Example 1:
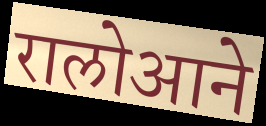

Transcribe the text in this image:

रालोआने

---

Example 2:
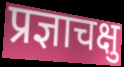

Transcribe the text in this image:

प्रज्ञाचक्षु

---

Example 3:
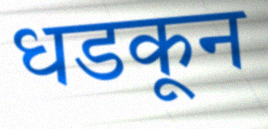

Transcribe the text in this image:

धडकून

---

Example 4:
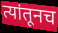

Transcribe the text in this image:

त्यांतूनच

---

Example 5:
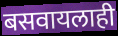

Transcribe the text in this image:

बसवायलाही